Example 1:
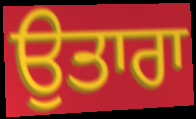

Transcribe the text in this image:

ਉਤਾਰਾ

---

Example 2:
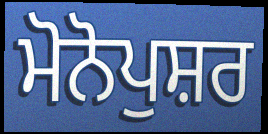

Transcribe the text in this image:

ਮੋਨੋਪੁਸ਼ਰ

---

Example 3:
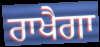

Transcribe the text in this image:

ਰਾਖੈਗਾ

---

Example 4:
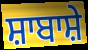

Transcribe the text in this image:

ਸ਼ਾਬਾਸ਼ੇ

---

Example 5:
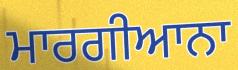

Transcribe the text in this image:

ਮਾਰਗੀਆਨਾ